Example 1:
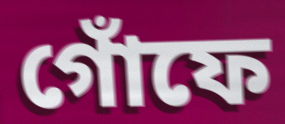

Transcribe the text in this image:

গোঁফে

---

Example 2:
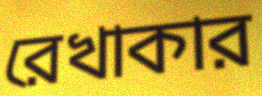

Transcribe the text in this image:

রেখাকার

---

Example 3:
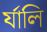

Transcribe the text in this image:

র্যালি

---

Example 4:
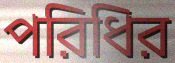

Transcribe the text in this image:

পরিধির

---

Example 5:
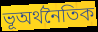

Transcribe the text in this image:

ভূঅর্থনৈতিক